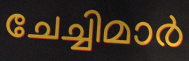
ചേച്ചിമാർ